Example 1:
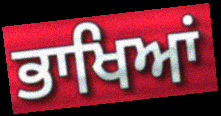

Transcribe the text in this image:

ਭਾਖਿਆਂ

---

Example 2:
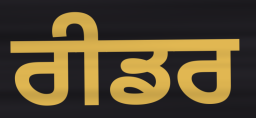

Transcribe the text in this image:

ਰੀਡਰ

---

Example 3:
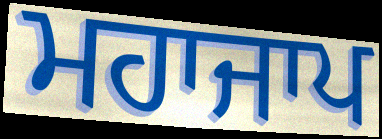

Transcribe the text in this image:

ਮਹਾਜਾਪ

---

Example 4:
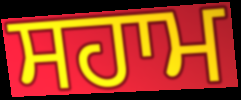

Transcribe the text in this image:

ਸਹਾਮ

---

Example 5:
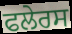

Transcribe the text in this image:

ਫਲੇਰਸ